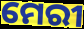
ମେରୀ